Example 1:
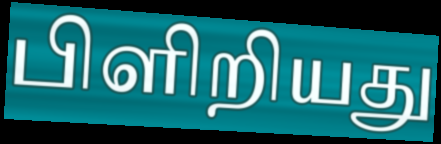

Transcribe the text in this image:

பிளிறியது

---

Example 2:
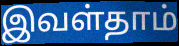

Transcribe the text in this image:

இவள்தாம்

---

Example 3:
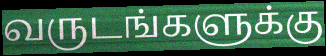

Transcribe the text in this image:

வருடங்களுக்கு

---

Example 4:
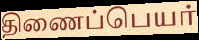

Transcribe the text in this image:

திணைப்பெயர்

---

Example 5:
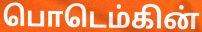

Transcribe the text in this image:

பொடெம்கின்